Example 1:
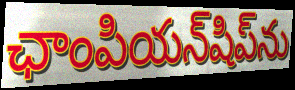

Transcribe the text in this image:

ఛాంపియన్‌షిప్‌ను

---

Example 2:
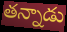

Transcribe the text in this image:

తన్నాడు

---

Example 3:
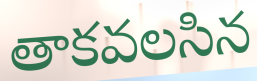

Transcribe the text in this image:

తాకవలసిన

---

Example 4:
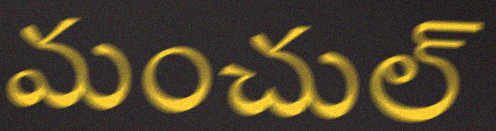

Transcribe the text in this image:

మంచుల్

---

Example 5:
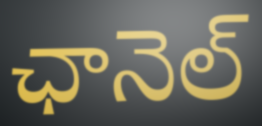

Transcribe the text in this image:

ఛానెల్